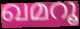
ഖമറൂ